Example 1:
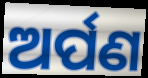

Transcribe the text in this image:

ଅର୍ପଣ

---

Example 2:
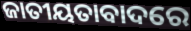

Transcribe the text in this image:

ଜାତୀୟତାବାଦରେ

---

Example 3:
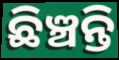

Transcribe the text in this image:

ଛିଞ୍ଚନ୍ତି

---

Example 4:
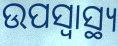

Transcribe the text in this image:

ଉପସ୍ୱାସ୍ଥ୍ୟ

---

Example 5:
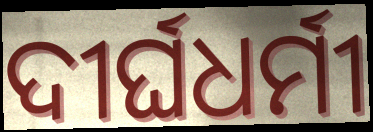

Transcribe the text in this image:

ଦୀର୍ଘଧର୍ମୀ